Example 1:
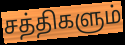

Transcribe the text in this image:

சத்திகளும்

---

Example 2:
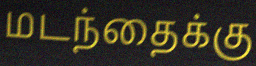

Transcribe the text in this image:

மடந்தைக்கு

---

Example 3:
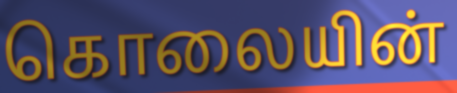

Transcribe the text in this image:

கொலையின்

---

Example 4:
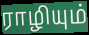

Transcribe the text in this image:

ராழியும்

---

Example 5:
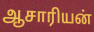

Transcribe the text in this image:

ஆசாரியன்